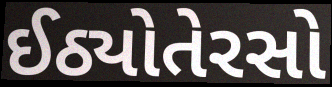
ઈઠ્યોતેરસો